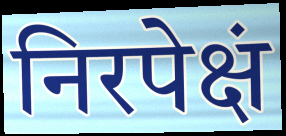
निरपेक्षं